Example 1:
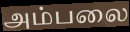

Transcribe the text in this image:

அம்பலை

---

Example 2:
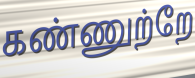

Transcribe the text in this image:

கண்ணுற்றே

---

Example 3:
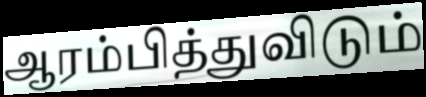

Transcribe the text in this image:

ஆரம்பித்துவிடும்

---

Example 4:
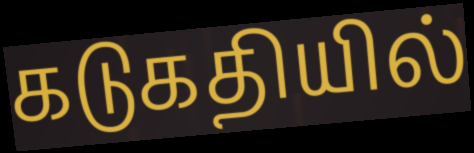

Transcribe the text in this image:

கடுகதியில்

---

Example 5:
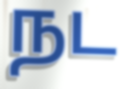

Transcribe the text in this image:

நட